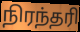
நிரந்தரி